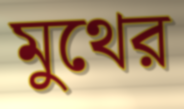
মুথের